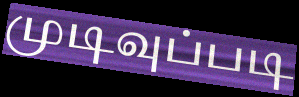
முடிவுப்படி